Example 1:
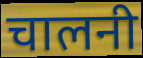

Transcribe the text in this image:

चालनी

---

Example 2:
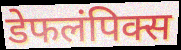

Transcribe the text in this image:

डेफलंपिक्स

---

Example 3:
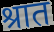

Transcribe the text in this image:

श्रात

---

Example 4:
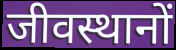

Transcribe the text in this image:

जीवस्थानों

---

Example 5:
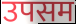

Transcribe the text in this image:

उपसम